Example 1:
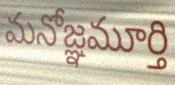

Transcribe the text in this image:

మనోజ్ఞమూర్తి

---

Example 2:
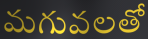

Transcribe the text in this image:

మగువలతో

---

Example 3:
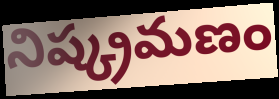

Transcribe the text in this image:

నిష్క్రమణం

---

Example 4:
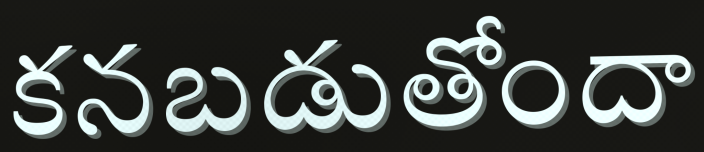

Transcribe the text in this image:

కనబడుతోందా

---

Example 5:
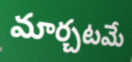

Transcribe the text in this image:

మార్చటమే